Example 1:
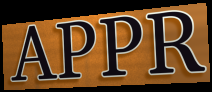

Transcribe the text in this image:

APPR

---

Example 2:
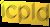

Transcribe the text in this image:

icpld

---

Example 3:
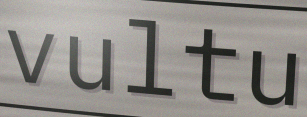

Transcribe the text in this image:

vultu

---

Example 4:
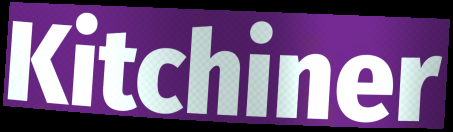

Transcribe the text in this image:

Kitchiner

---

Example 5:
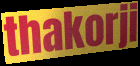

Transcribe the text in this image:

thakorji